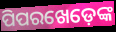
ପିପରଖେଡ଼େଙ୍କ